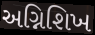
અગ્નિશિખ